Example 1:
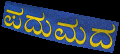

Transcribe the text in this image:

ಪದುಮದ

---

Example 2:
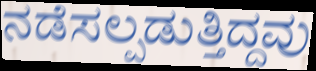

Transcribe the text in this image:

ನಡೆಸಲ್ಪಡುತ್ತಿದ್ದವು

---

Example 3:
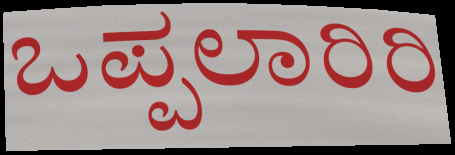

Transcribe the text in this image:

ಒಪ್ಪಲಾರಿರಿ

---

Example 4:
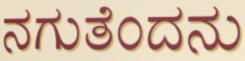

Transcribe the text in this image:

ನಗುತೆಂದನು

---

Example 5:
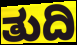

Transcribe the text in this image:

ತುದಿ